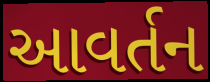
આવર્તન